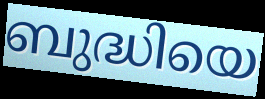
ബുദ്ധിയെ